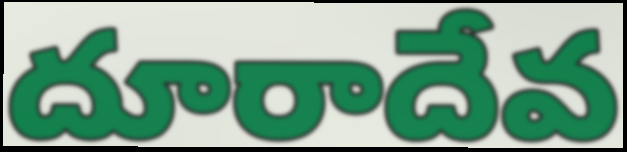
దూరాదేవ